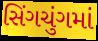
સિંગચુંગમાં